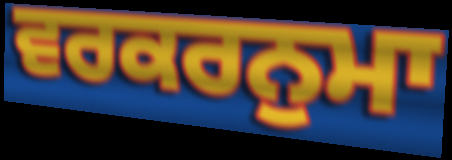
ਵਰਕਰਨੁਮਾ